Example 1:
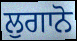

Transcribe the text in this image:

ਲੁਗਾਨੋ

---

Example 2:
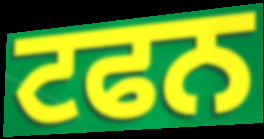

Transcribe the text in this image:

ਟਫਨ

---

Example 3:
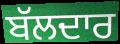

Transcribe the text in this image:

ਬੱਲਦਾਰ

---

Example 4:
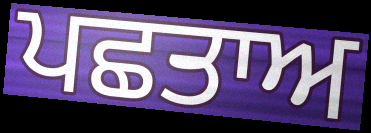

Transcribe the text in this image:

ਪਛਤਾਅ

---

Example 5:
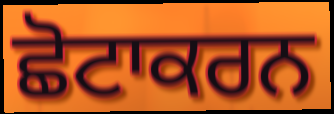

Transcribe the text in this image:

ਛੋਟਾਕਰਨ